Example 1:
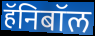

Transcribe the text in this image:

हॅनिबॉल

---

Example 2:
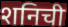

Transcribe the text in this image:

शनिची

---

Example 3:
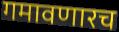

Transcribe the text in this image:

गमावणारच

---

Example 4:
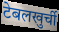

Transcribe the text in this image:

टेबलखुर्ची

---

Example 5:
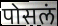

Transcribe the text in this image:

पोसलं